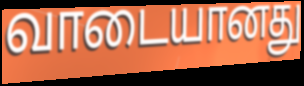
வாடையானது